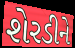
શેરડીને